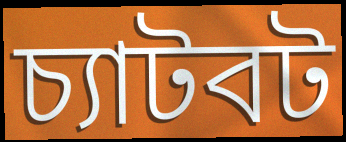
চ্যাটবট